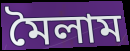
মৈলাম